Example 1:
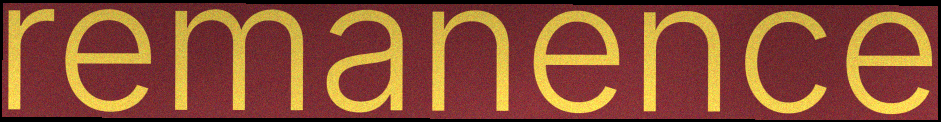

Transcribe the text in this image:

remanence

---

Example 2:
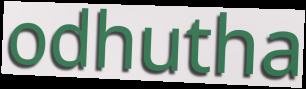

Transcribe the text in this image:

odhutha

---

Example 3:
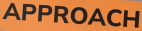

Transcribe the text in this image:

APPROACH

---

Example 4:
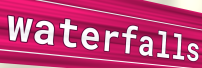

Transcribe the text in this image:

waterfalls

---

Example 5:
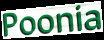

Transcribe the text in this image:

Poonia